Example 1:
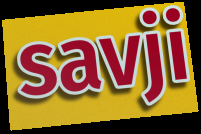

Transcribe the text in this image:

savji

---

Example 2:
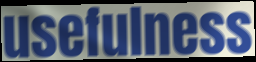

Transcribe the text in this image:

usefulness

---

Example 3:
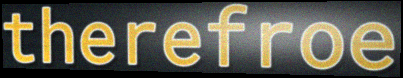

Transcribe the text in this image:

therefroe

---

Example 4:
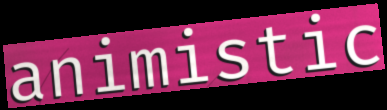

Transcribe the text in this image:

animistic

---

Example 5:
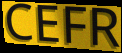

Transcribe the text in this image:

CEFR